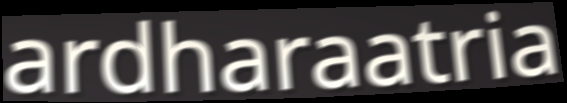
ardharaatria